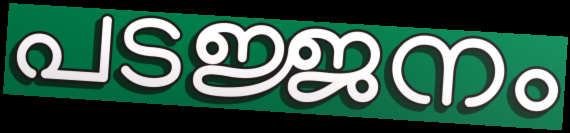
പടജ്ജനം